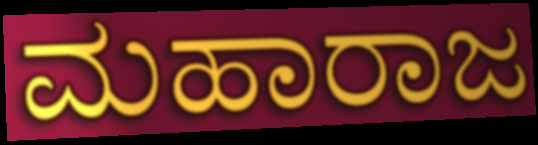
ಮಹಾರಾಜ